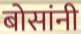
बोसांनी